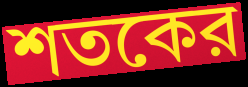
শতকের